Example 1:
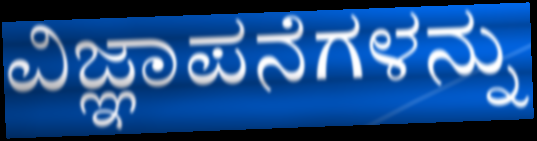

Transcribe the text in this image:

ವಿಜ್ಞಾಪನೆಗಳನ್ನು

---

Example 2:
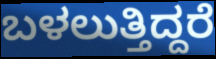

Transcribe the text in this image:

ಬಳಲುತ್ತಿದ್ದರೆ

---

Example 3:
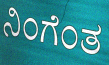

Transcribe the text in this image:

ನಿಂಗೆಂತ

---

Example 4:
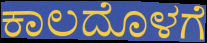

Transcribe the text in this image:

ಕಾಲದೊಳಗೆ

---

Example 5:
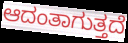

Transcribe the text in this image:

ಆದಂತಾಗುತ್ತದೆ